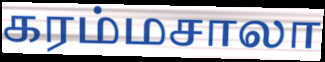
கரம்மசாலா